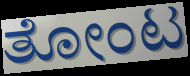
ತೋಂಟ